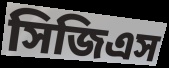
সিজিএস